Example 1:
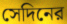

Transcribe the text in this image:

সেদিনের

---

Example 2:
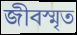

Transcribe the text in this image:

জীবস্মৃত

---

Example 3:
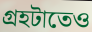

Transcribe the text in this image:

গ্রহটাতেও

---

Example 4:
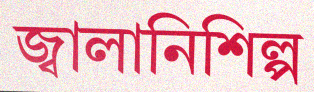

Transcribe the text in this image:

জ্বালানিশিল্প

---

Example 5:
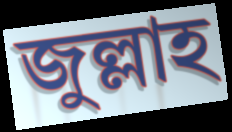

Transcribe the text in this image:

জুল্লাহ